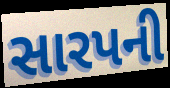
સારપની